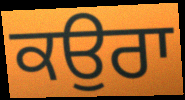
ਕਉਰਾ